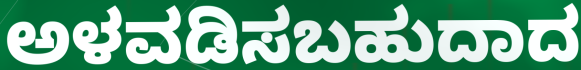
ಅಳವಡಿಸಬಹುದಾದ